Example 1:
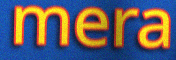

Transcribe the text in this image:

mera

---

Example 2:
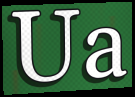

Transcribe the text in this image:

Ua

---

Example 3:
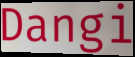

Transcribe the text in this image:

Dangi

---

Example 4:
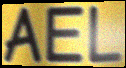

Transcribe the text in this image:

AEL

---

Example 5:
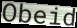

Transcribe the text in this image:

Obeid